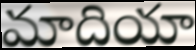
మాదియా